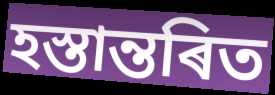
হস্তান্তৰিত